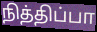
நித்திப்பா